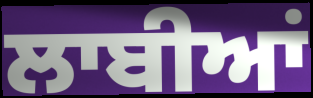
ਲਾਬੀਆਂ